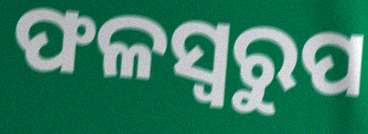
ଫଳସ୍ୱରୁପ